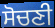
ਸੋਚਣੀ